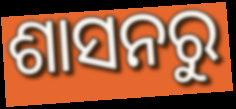
ଶାସନରୁ